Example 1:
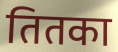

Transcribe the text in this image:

तितका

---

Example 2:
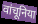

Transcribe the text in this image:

वांचूनिया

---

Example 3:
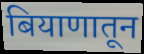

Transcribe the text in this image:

बियाणातून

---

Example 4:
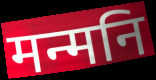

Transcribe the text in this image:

मन्मनि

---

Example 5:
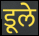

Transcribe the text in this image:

डूले